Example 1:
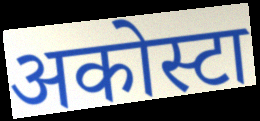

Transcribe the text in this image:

अकोस्टा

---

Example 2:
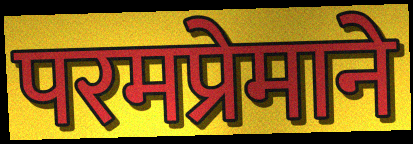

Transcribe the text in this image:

परमप्रेमाने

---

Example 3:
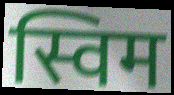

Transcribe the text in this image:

स्विम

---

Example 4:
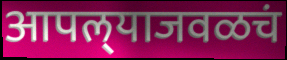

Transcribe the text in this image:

आपल्याजवळचं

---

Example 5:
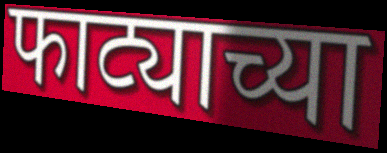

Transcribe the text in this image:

फाट्याच्या